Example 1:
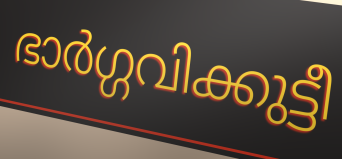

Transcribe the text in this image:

ഭാർഗ്ഗവിക്കുട്ടീ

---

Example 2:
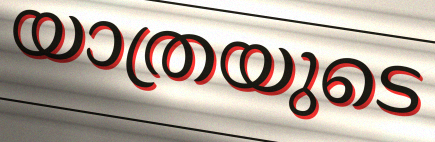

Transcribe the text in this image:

യാത്രയുടെ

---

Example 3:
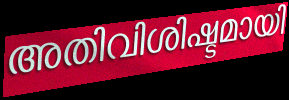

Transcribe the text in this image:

അതിവിശിഷ്ടമായി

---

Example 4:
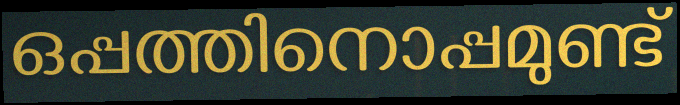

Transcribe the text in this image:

ഒപ്പത്തിനൊപ്പമുണ്ട്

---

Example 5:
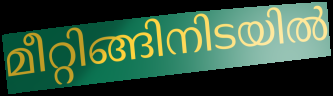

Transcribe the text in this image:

മീറ്റിങ്ങിനിടയിൽ